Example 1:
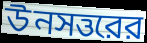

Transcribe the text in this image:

উনসত্তরের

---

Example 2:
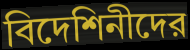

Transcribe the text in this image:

বিদেশিনীদের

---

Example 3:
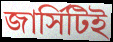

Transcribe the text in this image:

জার্সিটিই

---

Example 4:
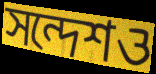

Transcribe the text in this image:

সন্দেশও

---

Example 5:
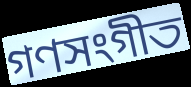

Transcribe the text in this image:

গণসংগীত